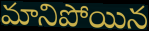
మానిపోయిన